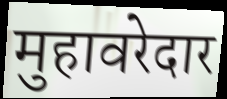
मुहावरेदार